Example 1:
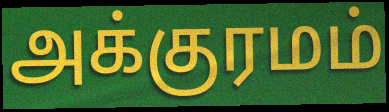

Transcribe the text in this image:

அக்குரமம்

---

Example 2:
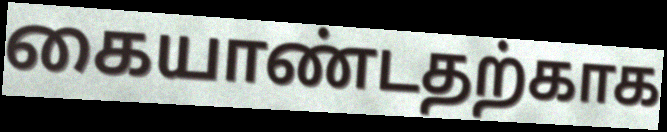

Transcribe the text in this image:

கையாண்டதற்காக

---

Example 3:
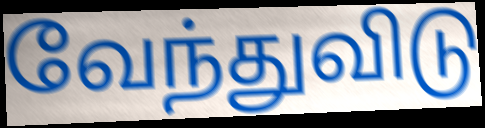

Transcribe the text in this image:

வேந்துவிடு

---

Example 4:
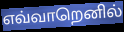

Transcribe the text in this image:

எவ்வாறெனில்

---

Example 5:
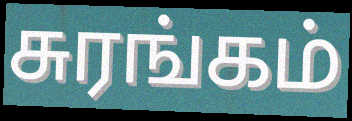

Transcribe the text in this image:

சுரங்கம்